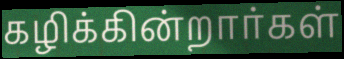
கழிக்கின்றார்கள்